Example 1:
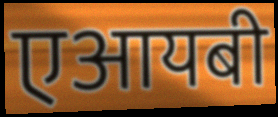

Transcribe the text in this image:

एआयबी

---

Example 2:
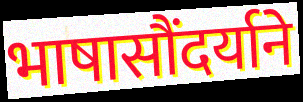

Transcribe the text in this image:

भाषासौंदर्याने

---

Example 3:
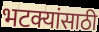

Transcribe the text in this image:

भटक्यांसाठी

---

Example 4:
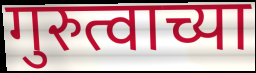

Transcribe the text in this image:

गुरुत्वाच्या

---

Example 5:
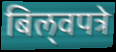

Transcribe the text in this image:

बिल्वपत्रे